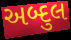
અબ્દુલ